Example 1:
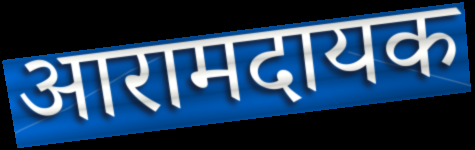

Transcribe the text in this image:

आरामदायक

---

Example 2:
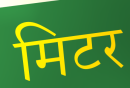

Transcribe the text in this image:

मिटर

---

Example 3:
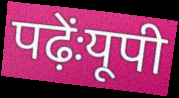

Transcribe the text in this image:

पढ़ेंःयूपी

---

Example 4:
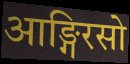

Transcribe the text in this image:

आङ्गिरसो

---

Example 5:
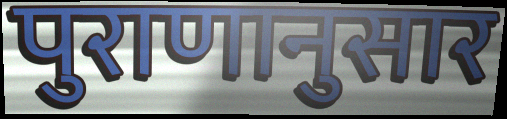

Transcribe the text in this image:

पुराणानुसार